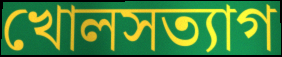
খোলসত্যাগ